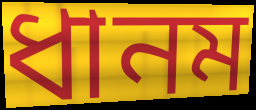
ধানম